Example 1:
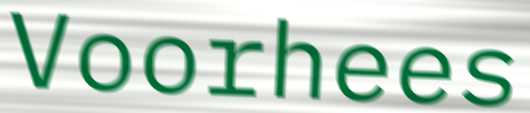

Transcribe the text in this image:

Voorhees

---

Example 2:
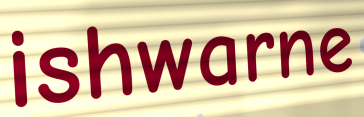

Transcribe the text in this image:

ishwarne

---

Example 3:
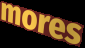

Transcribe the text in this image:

mores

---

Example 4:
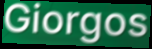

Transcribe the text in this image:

Giorgos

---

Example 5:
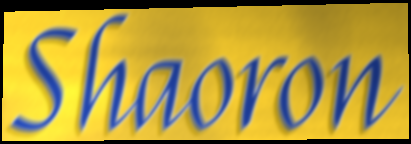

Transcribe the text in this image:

Shaoron